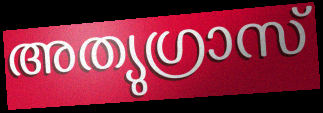
അത്യുഗ്രാസ്